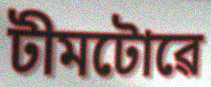
টীমটোৱে